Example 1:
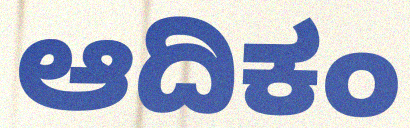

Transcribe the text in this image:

ಆದಿಕಂ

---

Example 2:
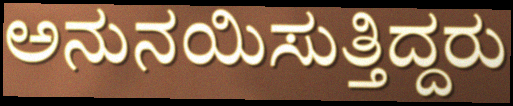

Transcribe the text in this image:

ಅನುನಯಿಸುತ್ತಿದ್ದರು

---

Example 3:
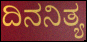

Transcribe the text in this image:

ದಿನನಿತ್ಯ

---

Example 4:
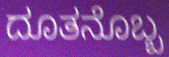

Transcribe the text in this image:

ದೂತನೊಬ್ಬ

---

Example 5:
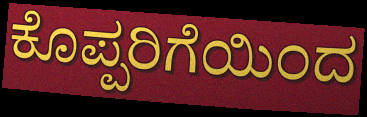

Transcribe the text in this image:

ಕೊಪ್ಪರಿಗೆಯಿಂದ